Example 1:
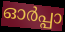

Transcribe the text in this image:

ഓർപ്പാ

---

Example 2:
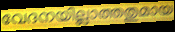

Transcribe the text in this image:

വേദനയില്ലാത്തതുമായ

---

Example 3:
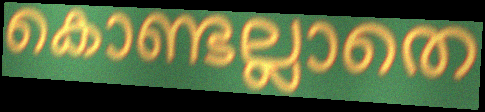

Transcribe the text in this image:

കൊണ്ടല്ലാതെ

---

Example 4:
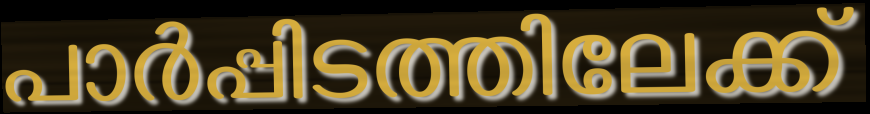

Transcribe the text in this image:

പാർപ്പിടത്തിലേക്ക്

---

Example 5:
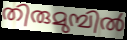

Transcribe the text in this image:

തിരുമുമ്പിൽ